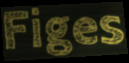
Figes